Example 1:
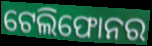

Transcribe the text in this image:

ଟେଲିଫୋନର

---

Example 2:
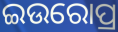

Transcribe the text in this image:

ଇଉରୋପ୍ର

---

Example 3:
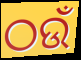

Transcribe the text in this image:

ଠଉଁ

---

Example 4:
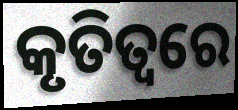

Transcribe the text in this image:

କୃତିତ୍ୱରେ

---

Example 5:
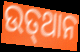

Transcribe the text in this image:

ଉତ୍‌ଥାନ